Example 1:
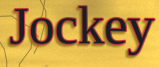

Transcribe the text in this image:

Jockey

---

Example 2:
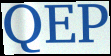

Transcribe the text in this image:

QEP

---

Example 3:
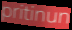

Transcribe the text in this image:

pritinun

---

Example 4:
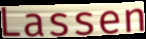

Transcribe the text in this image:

Lassen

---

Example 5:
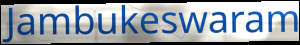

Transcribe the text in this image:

Jambukeswaram